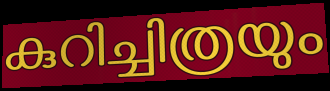
കുറിച്ചിത്രയും